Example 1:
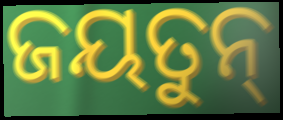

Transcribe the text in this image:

ଜୟତୁନ୍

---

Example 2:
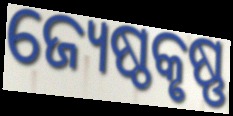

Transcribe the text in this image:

ଜ୍ୟେଷ୍ଠକୃଷ୍ଣ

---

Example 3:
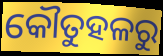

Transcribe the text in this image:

କୌତୁହଳରୁ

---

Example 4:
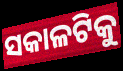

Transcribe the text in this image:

ସକାଳଟିକୁ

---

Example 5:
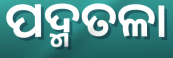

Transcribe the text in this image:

ପଦ୍ମତଳା